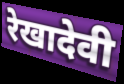
रेखादेवी